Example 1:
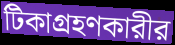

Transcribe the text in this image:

টিকাগ্রহণকারীর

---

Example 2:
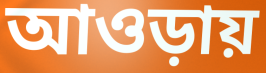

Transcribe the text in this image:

আওড়ায়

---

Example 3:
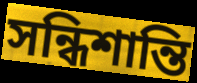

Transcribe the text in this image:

সন্ধিশান্তি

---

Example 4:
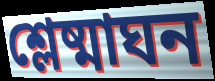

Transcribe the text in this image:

শ্লেষ্মাঘন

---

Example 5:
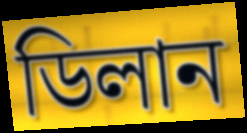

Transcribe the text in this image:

ডিলান